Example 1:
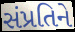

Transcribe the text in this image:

સંપ્રતિને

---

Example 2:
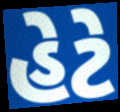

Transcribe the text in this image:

હેટે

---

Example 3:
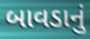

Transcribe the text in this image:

બાવડાનું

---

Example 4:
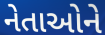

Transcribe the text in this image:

નેતાઓને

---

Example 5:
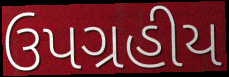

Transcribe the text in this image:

ઉપગ્રહીય